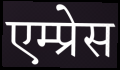
एम्प्रेस